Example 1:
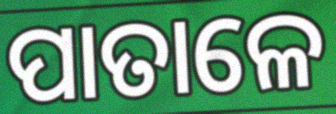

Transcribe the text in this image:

ପାତାଳେ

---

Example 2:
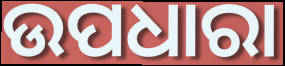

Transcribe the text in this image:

ଉପଧାରା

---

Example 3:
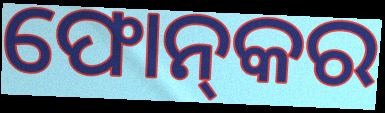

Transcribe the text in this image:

ଫୋନ୍‌କର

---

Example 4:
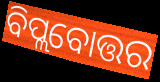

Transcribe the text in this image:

ବିପ୍ଲବୋତ୍ତର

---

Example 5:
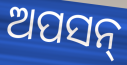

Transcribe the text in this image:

ଅପସନ୍